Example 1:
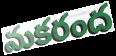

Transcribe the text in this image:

మకరంద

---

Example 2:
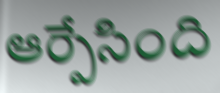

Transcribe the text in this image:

ఆర్పేసింది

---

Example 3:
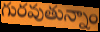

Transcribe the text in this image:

గురవుతున్నాం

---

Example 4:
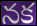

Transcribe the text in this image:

నక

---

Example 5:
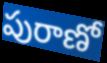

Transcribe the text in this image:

పురాణో